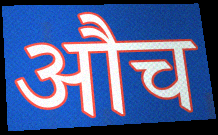
औच